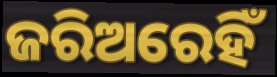
ଜରିଅରେହିଁ